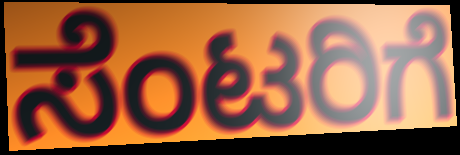
ಸೆಂಟರಿಗೆ